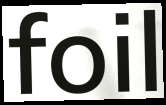
foil